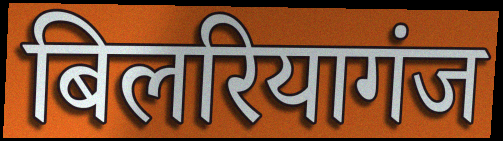
बिलरियागंज